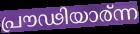
പ്രൗഢിയാര്ന്ന